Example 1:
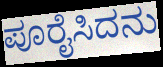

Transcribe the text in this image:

ಪೂರೈಸಿದನು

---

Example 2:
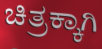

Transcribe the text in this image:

ಚಿತ್ರಕ್ಕಾಗಿ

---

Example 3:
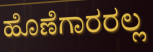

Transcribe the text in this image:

ಹೊಣೆಗಾರರಲ್ಲ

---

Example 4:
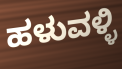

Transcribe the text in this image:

ಹಳುವಳ್ಳಿ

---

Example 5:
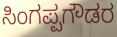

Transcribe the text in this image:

ಸಿಂಗಪ್ಪಗೌಡರ